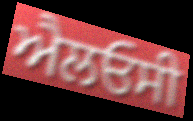
ਐਲਓਸੀ